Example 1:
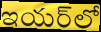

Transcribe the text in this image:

ఇయర్‌లో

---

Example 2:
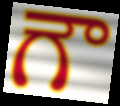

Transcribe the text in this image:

గౌ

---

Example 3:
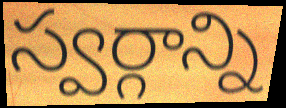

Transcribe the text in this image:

స్వర్గాన్ని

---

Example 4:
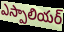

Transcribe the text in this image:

ఎస్పాలియర్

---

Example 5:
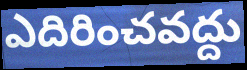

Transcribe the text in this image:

ఎదిరించవద్దు